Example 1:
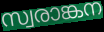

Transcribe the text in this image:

സ്വരാങ്കന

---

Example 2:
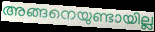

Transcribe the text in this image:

അങ്ങനെയുണ്ടായില്ല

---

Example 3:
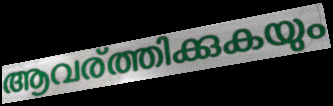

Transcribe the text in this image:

ആവര്ത്തിക്കുകയും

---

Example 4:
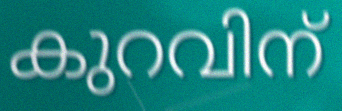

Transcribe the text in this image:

കുറവിന്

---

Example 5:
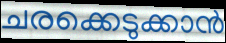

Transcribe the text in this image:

ചരക്കെടുക്കാൻ